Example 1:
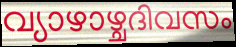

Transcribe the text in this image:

വ്യാഴാഴ്ചദിവസം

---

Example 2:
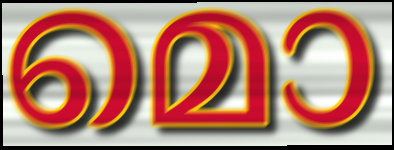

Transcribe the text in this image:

മൊ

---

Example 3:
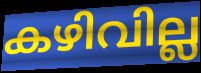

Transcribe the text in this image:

കഴിവില്ല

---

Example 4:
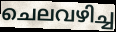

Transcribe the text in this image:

ചെലവഴിച്ച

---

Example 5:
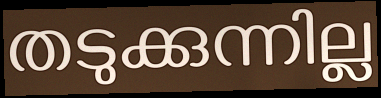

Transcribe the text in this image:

തടുക്കുന്നില്ല